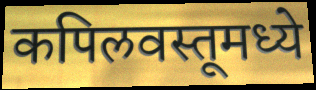
कपिलवस्तूमध्ये